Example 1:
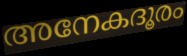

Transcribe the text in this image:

അനേകദൂരം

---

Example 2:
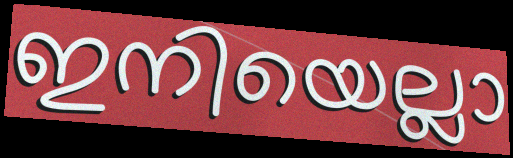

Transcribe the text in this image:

ഇനിയെല്ലാ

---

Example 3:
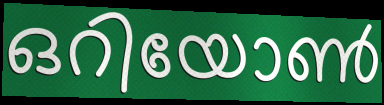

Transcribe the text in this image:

ഒറിയോൺ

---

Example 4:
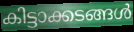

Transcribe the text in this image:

കിട്ടാക്കടങ്ങൾ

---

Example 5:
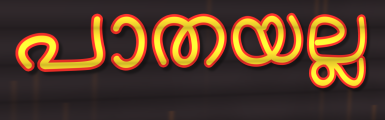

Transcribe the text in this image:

പാതയല്ല